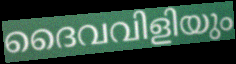
ദൈവവിളിയും